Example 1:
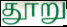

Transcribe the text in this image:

தூறு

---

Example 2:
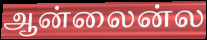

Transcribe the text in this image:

ஆன்லைன்ல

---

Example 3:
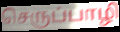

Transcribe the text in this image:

செருப்பாழி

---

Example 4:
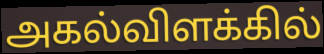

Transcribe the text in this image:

அகல்விளக்கில்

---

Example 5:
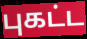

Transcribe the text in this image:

புகட்ட